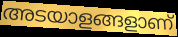
അടയാളങ്ങളാണ്